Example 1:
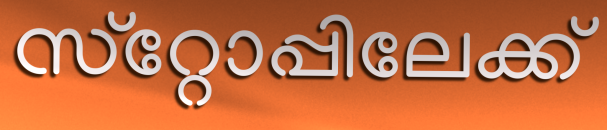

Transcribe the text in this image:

സ്‌റ്റോപ്പിലേക്ക്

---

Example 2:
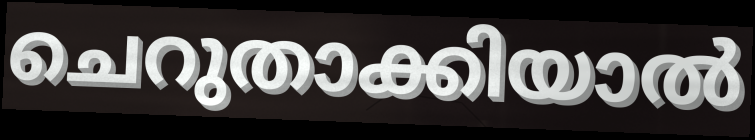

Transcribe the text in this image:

ചെറുതാക്കിയാൽ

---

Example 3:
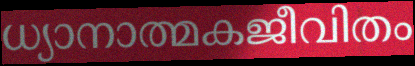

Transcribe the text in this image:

ധ്യാനാത്മകജീവിതം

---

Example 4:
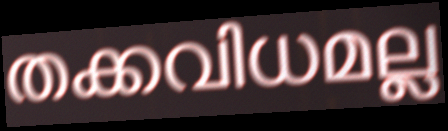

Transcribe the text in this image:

തക്കവിധമല്ല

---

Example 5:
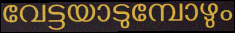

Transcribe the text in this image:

വേട്ടയാടുമ്പോഴും